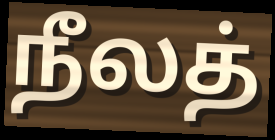
நீலத்